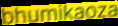
bhumikaoza